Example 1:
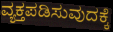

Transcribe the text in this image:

ವ್ಯಕ್ತಪಡಿಸುವುದಕ್ಕೆ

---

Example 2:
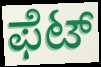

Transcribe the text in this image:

ಫೆಟ್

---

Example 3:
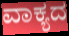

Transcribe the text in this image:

ವಾಕ್ಯದ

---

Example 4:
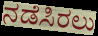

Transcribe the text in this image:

ನಡೆಸಿರಲು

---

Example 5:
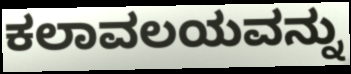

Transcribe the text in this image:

ಕಲಾವಲಯವನ್ನು